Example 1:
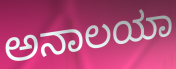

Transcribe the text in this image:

ಅನಾಲಯಾ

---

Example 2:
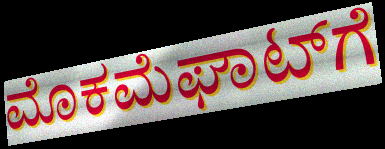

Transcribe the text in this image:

ಮೊಕಮೆಘಾಟ್‌ಗೆ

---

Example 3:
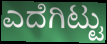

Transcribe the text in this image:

ಎದೆಗಿಟ್ಟು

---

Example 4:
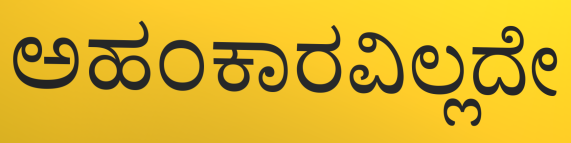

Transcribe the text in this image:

ಅಹಂಕಾರವಿಲ್ಲದೇ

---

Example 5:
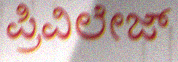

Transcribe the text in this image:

ಪ್ರಿವಿಲೇಜ್